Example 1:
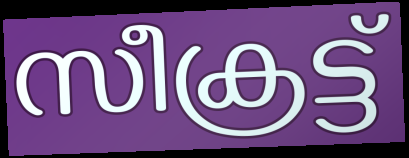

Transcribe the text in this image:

സീക്രട്ട്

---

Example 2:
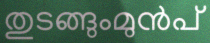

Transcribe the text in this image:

തുടങ്ങുംമുൻപ്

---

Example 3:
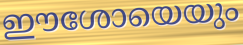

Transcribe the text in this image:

ഈശോയെയും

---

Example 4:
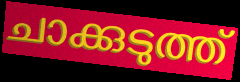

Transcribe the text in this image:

ചാക്കുടുത്ത്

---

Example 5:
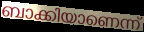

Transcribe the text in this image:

ബാക്കിയാണെന്ന്